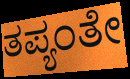
ತಪ್ಯಂತೇ